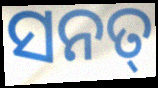
ସନତ୍